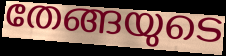
തേങ്ങയുടെ